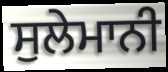
ਸੁਲੇਮਾਨੀ